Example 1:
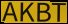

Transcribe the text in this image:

AKBT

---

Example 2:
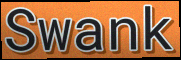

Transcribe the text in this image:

Swank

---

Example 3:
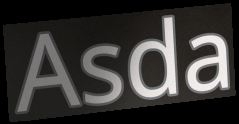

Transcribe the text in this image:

Asda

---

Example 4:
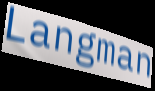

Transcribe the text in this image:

Langman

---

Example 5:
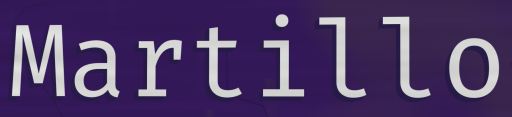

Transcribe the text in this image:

Martillo